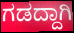
ಗಡದ್ದಾಗಿ